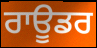
ਰਾਊਡਰ